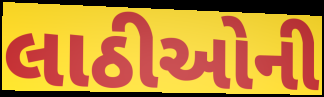
લાઠીઓની